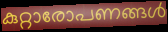
കുറ്റാരോപണങ്ങൾ